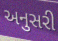
અનુસરી